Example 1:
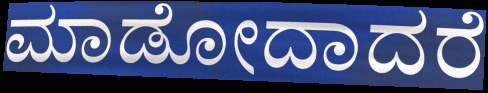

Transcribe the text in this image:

ಮಾಡೋದಾದರೆ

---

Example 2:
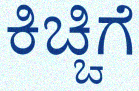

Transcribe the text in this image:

ಕಿಚ್ಚಿಗೆ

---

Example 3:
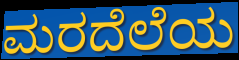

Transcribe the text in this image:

ಮರದೆಲೆಯ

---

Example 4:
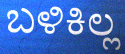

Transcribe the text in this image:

ಬಳಿಕಿಲ್ಲ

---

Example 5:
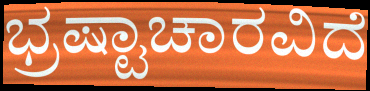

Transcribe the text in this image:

ಭ್ರಷ್ಟಾಚಾರವಿದೆ